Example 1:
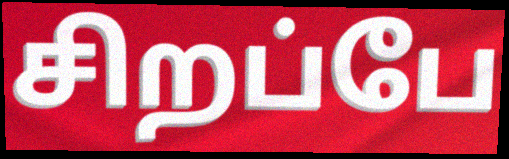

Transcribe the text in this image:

சிறப்பே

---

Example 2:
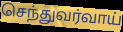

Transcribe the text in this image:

செந்துவர்வாய்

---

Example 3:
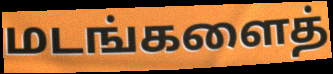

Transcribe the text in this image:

மடங்களைத்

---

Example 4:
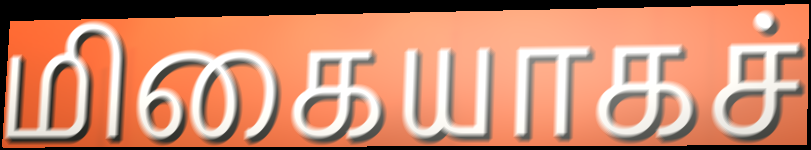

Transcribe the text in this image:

மிகையாகச்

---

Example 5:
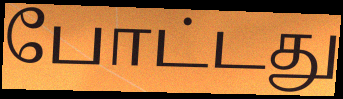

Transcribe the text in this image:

போட்டது